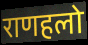
राणहलो